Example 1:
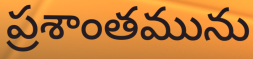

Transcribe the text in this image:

ప్రశాంతమును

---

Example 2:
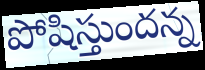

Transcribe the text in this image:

పోషిస్తుందన్న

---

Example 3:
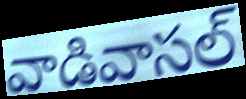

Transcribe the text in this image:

వాడివాసల్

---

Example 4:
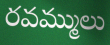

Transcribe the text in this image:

రవమ్ములు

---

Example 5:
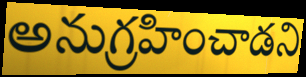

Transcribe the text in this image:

అనుగ్రహించాడని